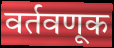
वर्तवणूक